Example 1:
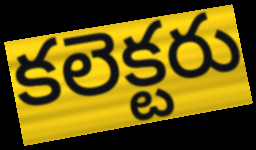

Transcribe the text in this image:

కలెక్టరు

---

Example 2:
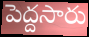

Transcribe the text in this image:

పెద్దసారు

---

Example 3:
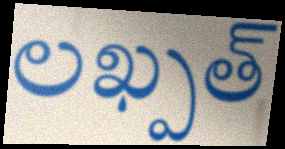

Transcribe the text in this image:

లఖ్పత్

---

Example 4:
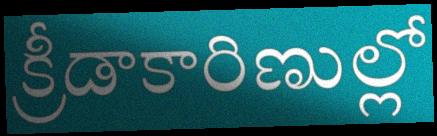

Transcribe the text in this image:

క్రీడాకారిణుల్లో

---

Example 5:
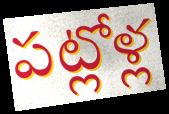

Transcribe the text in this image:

పట్లోళ్ల